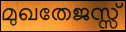
മുഖതേജസ്സ്